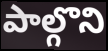
పాల్గొని